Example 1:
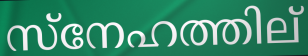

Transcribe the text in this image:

സ്നേഹത്തില്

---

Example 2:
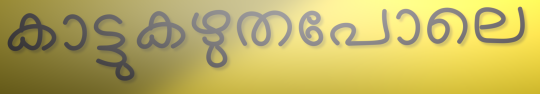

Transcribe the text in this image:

കാട്ടുകഴുതപോലെ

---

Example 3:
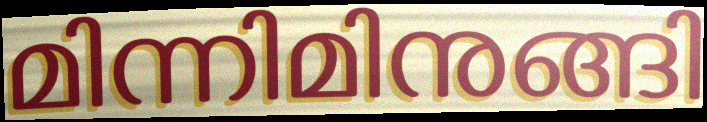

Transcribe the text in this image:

മിന്നിമിനുങ്ങി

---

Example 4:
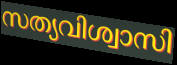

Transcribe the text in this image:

സത്യവിശ്വാസി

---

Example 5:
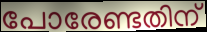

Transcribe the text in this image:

പോരേണ്ടതിന്